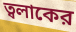
ত্বলাকের